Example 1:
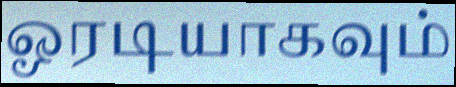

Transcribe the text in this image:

ஓரடியாகவும்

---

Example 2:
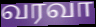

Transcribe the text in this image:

வரவா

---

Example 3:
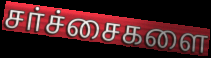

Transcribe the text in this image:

சர்ச்சைகளை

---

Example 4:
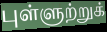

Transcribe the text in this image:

புள்ளுற்றுக்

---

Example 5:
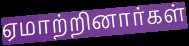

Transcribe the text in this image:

ஏமாற்றினார்கள்